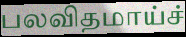
பலவிதமாய்ச்